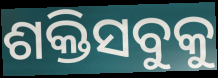
ଶକ୍ତିସବୁକୁ